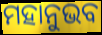
ମହାନୁଭବ